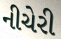
નીચેરી